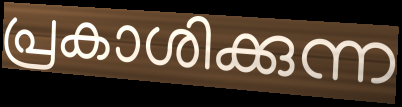
പ്രകാശിക്കുന്ന